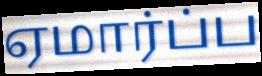
ஏமார்ப்ப